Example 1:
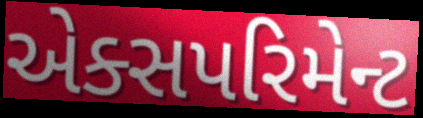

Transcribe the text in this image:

એક્સપરિમેન્ટ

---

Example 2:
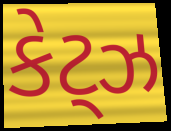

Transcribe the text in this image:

કેટ્ઝ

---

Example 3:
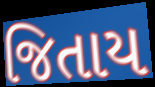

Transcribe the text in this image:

જિતાય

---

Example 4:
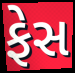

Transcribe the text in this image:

ફેસ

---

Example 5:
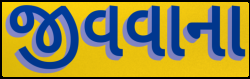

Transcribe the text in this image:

જીવવાના